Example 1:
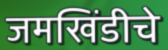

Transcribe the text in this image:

जमखिंडीचे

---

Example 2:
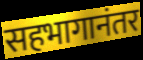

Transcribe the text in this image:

सहभागानंतर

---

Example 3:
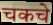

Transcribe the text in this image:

चकचे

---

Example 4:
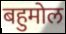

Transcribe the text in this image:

बहुमोल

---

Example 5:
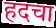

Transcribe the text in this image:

हदचा